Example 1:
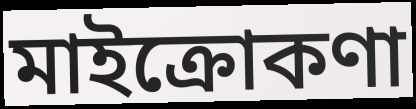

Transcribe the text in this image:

মাইক্রোকণা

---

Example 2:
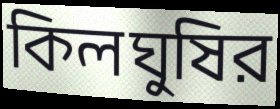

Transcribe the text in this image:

কিলঘুষির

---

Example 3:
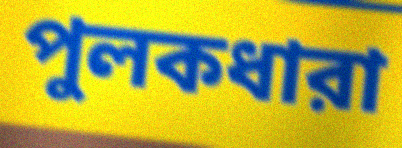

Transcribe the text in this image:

পুলকধারা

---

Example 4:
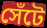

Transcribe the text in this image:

সেঁটে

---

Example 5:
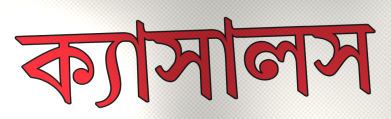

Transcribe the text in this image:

ক্যাসালস